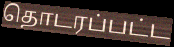
தொடரப்பட்ட